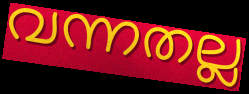
വന്നതല്ല